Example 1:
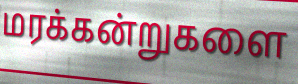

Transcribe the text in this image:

மரக்கன்றுகளை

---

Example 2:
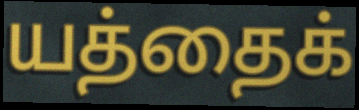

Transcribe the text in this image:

யத்தைக்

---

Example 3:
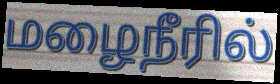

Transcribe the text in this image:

மழைநீரில்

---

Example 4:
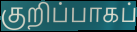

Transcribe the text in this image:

குறிப்பாகப்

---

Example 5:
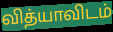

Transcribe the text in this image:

வித்யாவிடம்